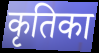
कृतिका